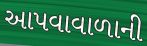
આપવાવાળાની